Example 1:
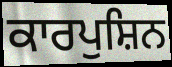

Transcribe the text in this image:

ਕਾਰਪੁਸ਼ਿਨ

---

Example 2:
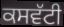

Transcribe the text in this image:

ਕਸਵੱਟੀ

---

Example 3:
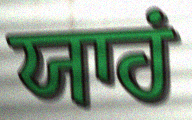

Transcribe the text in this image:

ਯਾਹਂ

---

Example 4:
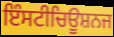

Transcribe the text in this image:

ਇੰਸਟੀਚਿਊਸ਼ਨਜ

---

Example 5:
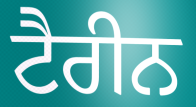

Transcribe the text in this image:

ਟੈਰੀਨ